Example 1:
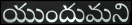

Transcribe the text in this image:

యుందుమని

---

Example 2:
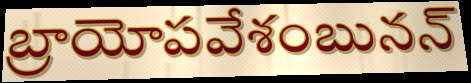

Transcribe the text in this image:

బ్రాయోపవేశంబునన్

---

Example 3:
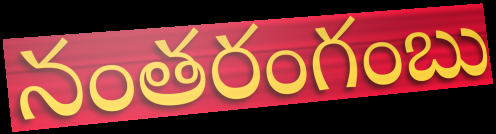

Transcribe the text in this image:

నంతరంగంబు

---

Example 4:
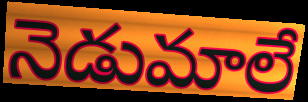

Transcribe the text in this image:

నెడుమాలే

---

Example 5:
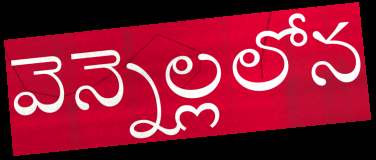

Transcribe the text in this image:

వెన్నెల్లలోన